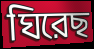
ঘিরেছ